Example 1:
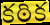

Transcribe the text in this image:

కఠిక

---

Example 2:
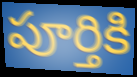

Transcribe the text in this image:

పూర్తికి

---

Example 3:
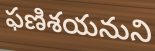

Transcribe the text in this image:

ఫణిశయనుని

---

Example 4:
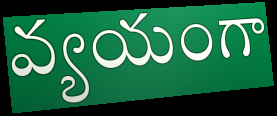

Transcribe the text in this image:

వ్యయంగా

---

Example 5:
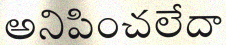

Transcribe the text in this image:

అనిపించలేదా